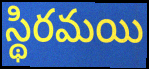
స్థిరమయి